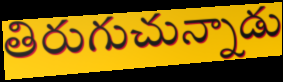
తిరుగుచున్నాడు